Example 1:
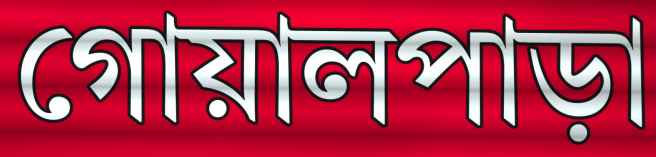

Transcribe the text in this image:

গোয়ালপাড়া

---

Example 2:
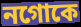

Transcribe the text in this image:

নগোকে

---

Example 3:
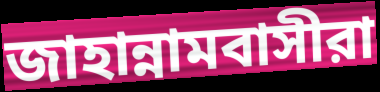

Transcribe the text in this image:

জাহান্নামবাসীরা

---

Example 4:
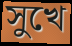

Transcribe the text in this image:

সুখে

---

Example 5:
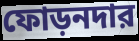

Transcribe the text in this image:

ফোড়নদার